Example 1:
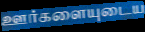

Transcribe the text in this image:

ஊர்களையுடைய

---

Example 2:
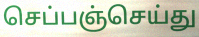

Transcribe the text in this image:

செப்பஞ்செய்து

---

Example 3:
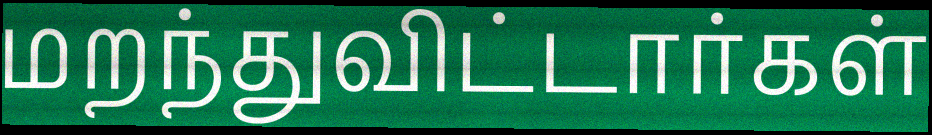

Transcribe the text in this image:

மறந்துவிட்டார்கள்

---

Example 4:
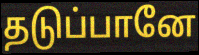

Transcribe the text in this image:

தடுப்பானே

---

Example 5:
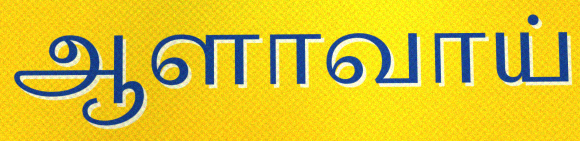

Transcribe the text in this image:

ஆளாவாய்